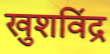
खुशविंद्र